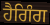
ਹੈਗਿੰਗ